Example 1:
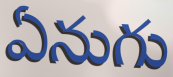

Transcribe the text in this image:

ఏనుగు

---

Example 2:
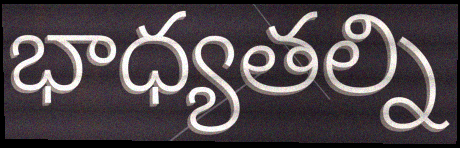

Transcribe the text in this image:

భాధ్యతల్ని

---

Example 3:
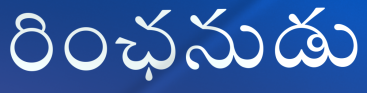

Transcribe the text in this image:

రింఛనుడు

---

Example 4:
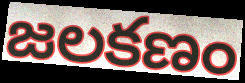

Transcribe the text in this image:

జలకణం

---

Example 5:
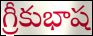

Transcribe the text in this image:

గ్రీకుభాష